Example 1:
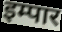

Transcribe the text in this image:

इम्पार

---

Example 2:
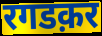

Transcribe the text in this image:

रगडक़र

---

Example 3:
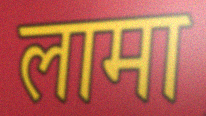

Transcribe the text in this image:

लामा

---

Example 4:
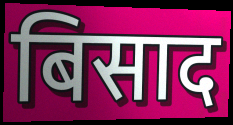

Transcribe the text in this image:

बिसाद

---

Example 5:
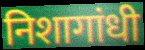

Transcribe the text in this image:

निशागांधी